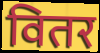
वितर